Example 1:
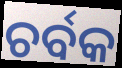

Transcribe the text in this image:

ଚର୍ବକ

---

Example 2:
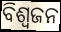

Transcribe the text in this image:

ବିଶ୍ଵଜନ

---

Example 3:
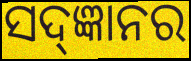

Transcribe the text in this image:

ସଦ୍‌ଜ୍ଞାନର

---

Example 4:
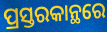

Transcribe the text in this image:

ପ୍ରସ୍ତରକାନ୍ଥରେ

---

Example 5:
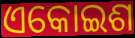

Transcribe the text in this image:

ଏକୋଇଶ